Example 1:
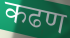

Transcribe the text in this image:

कढण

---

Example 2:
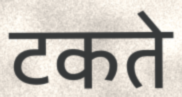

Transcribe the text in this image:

टकते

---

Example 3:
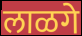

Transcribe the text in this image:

लाळगे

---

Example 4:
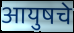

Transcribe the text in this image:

आयुषचे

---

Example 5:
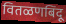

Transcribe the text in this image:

वितळणबिंदू